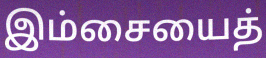
இம்சையைத்